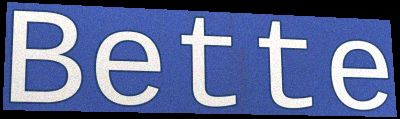
Bette